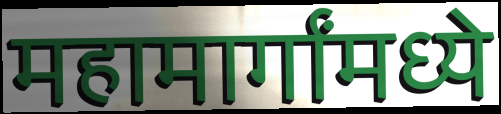
महामार्गांमध्ये